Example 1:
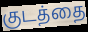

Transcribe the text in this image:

குடத்தை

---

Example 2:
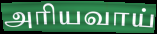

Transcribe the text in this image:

அரியவாய்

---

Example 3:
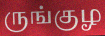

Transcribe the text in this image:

ருங்குழ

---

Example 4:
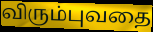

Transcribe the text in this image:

விரும்புவதை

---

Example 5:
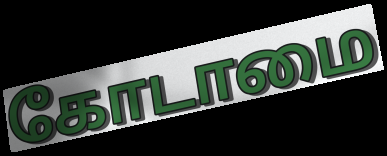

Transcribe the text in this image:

கோடாமை